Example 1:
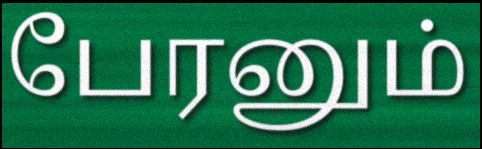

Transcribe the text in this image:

பேரனும்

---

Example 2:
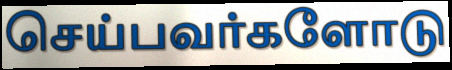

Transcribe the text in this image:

செய்பவர்களோடு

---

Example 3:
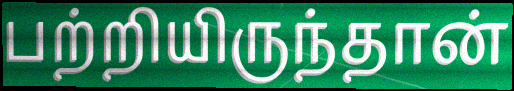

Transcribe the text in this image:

பற்றியிருந்தான்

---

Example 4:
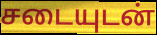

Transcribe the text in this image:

சடையுடன்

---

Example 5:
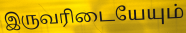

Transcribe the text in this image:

இருவரிடையேயும்